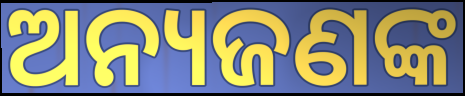
ଅନ୍ୟଜଣଙ୍କ